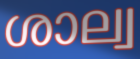
ശാല്വ